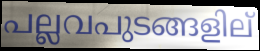
പല്ലവപുടങ്ങളില്